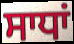
ਸਾਧਾਂ